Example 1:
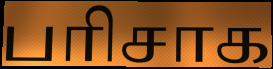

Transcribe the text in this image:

பரிசாக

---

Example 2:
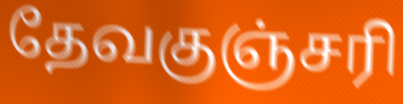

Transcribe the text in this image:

தேவகுஞ்சரி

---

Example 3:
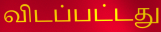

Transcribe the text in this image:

விடப்பட்டது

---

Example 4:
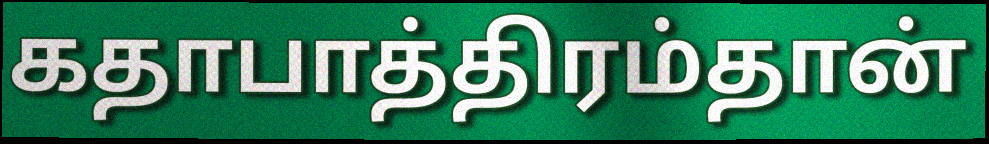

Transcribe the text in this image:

கதாபாத்திரம்தான்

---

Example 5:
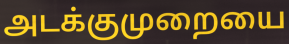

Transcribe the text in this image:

அடக்குமுறையை